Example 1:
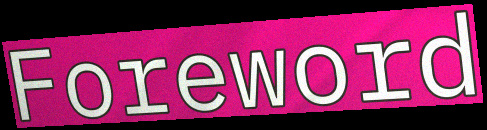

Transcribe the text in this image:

Foreword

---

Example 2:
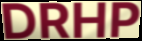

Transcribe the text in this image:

DRHP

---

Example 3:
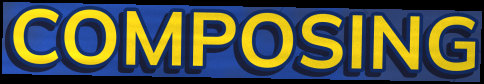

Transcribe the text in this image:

COMPOSING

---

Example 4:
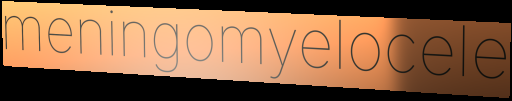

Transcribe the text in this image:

meningomyelocele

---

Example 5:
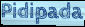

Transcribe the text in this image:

Pidipada